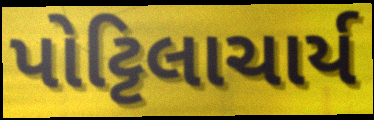
પોટ્ટિલાચાર્ય